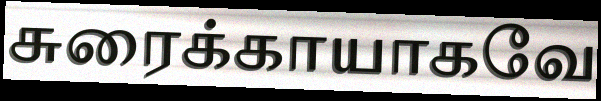
சுரைக்காயாகவே